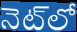
నెట్‌లో